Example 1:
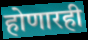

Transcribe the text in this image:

होणारही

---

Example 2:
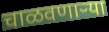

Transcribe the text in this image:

चाळवणाऱ्या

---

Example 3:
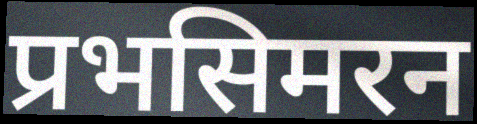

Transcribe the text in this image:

प्रभसिमरन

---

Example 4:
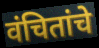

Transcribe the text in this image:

वंचितांचे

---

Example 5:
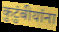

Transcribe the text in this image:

कुटुंबीयांना